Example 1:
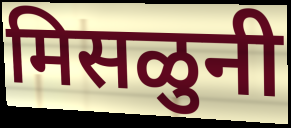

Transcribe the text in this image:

मिसळुनी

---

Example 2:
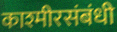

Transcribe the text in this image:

काश्मीरसंबंधी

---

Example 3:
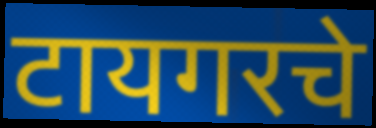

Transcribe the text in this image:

टायगरचे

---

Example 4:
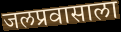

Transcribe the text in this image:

जलप्रवासाला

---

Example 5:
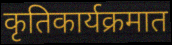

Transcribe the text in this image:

कृतिकार्यक्रमात